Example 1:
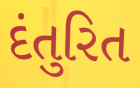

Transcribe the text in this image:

દંતુરિત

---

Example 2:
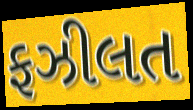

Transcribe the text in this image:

ફઝીલત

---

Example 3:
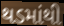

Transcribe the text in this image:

થડમાંથી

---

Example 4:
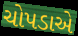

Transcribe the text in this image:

ચોપડાએ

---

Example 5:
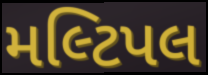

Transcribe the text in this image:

મલ્ટિપલ